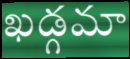
ఖడ్గమా